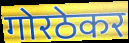
गोरठेकर